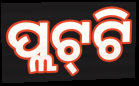
ପ୍ଲଟ୍‌ଟି